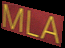
MLA